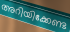
അറിയിക്കേണ്ട